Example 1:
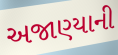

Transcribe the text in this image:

અજાણ્યાની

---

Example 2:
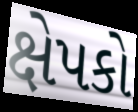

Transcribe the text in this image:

ક્ષેપકો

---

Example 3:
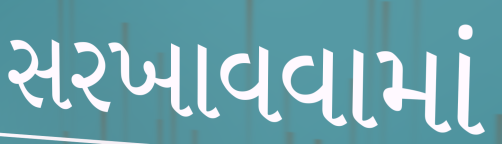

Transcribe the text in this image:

સરખાવવામાં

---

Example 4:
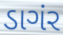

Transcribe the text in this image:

ડાગંર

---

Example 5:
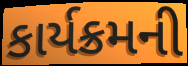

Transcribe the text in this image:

કાર્યક્રમની